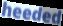
heeded